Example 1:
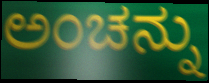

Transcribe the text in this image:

ಅಂಚನ್ನು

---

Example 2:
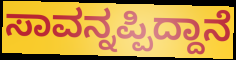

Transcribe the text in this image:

ಸಾವನ್ನಪ್ಪಿದ್ದಾನೆ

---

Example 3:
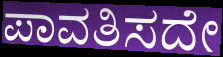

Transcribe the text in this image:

ಪಾವತಿಸದೇ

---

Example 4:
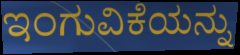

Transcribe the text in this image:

ಇಂಗುವಿಕೆಯನ್ನು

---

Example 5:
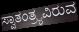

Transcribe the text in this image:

ಸ್ವಾತಂತ್ರ್ಯವಿರುವ